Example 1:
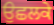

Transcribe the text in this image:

ਉਛਲਕੇ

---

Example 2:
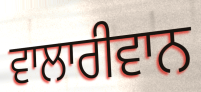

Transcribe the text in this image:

ਵਾਲਾਰੀਵਾਨ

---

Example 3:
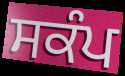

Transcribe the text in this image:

ਸਕੰਪ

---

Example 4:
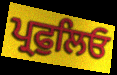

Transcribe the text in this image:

ਪ੍ਰਫੁਲਿਓ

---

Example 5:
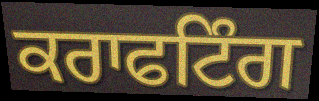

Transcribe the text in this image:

ਕਰਾਫਟਿੰਗ